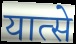
यात्से